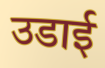
उडाई